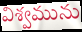
విశ్వమును